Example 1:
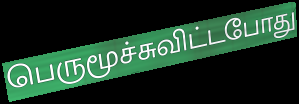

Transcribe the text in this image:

பெருமூச்சுவிட்டபோது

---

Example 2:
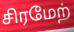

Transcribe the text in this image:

சிரமேற்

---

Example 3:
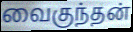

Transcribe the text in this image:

வைகுந்தன்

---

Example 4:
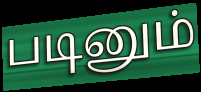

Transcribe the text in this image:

படினும்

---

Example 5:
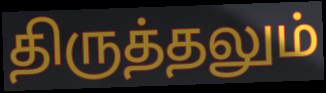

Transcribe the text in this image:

திருத்தலும்